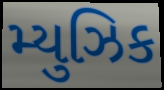
મ્યુઝિક